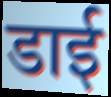
डाई